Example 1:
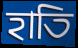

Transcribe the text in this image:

হাতি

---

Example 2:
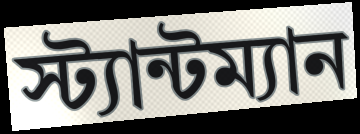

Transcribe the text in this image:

স্ট্যান্টম্যান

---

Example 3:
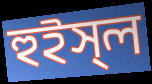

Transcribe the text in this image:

হুইস্‌ল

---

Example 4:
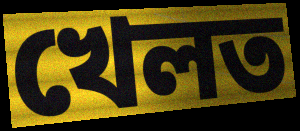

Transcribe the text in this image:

খেলত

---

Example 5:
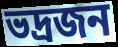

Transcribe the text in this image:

ভদ্রজন